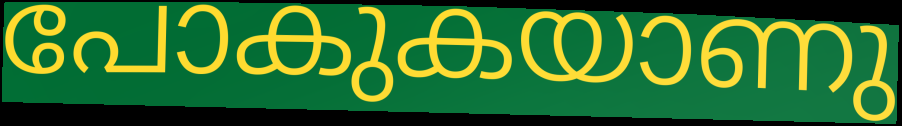
പോകുകയാണു